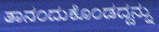
ತಾನಂದುಕೊಂಡದ್ದನ್ನು